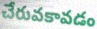
చేరువకావడం